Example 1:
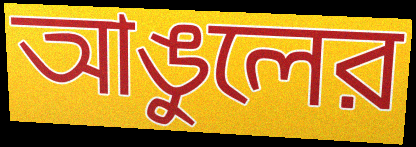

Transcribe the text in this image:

আঙুলের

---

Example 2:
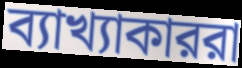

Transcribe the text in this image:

ব্যাখ্যাকাররা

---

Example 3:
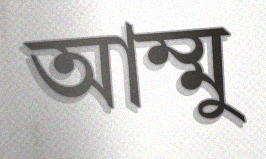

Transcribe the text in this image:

আম্মু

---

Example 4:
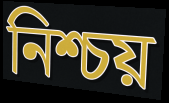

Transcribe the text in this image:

নিশ্চয়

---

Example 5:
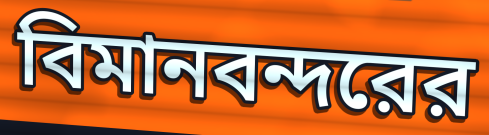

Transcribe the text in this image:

বিমানবন্দরের